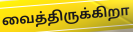
வைத்திருக்கிறா